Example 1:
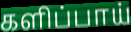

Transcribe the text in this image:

களிப்பாய்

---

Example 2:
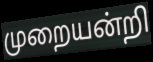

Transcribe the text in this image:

முறையன்றி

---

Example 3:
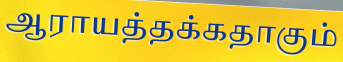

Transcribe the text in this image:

ஆராயத்தக்கதாகும்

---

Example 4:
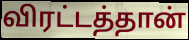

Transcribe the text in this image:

விரட்டத்தான்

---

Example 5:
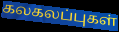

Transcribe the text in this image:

கலகலப்புகள்